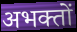
अभक्तों